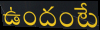
ఉందంటే